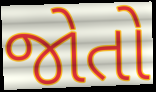
જોતો